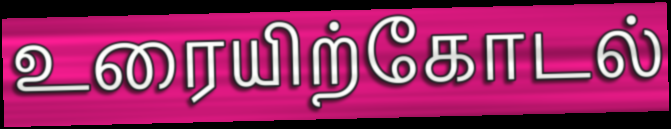
உரையிற்கோடல்